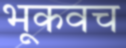
भूकवच